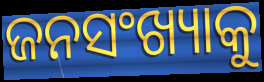
ଜନସଂଖ୍ୟାକୁ